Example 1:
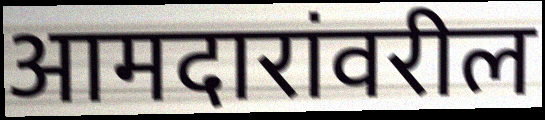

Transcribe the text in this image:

आमदारांवरील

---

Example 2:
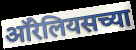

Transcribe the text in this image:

ऑरेलियसच्या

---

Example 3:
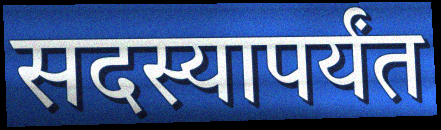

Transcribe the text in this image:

सदस्यापर्यंत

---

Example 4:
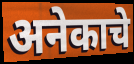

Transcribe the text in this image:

अनेकाचे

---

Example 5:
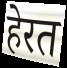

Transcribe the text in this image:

हेरत